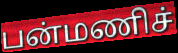
பன்மணிச்